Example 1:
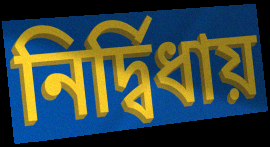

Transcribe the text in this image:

নির্দ্বিধায়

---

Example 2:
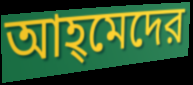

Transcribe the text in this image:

আহ্‌মেদের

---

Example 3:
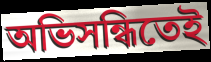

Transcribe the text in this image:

অভিসন্ধিতেই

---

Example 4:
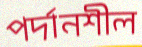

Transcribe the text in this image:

পর্দানশীল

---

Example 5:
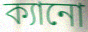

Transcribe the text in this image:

ক্যানো